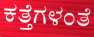
ಕತ್ತೆಗಳಂತೆ